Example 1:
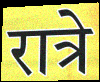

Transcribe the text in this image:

रात्रे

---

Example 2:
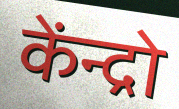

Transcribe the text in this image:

केंन्द्रो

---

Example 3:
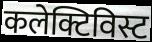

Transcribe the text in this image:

कलेक्टिविस्ट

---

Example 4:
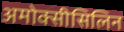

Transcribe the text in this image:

अमोक्सीसिलिन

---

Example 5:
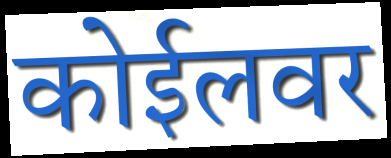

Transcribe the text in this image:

कोईलवर